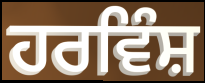
ਹਰਵਿੰਸ਼